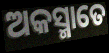
ଅକସ୍ମାତେ